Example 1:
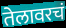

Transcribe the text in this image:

तेलावरचं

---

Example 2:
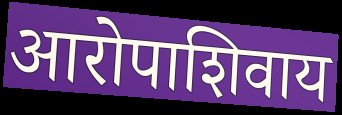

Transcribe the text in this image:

आरोपाशिवाय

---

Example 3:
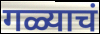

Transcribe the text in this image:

गळ्याचं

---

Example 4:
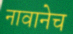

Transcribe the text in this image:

नावानेच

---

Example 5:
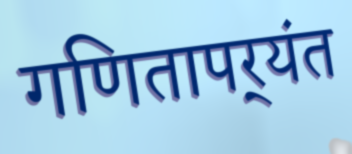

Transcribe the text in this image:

गणितापर्यंत